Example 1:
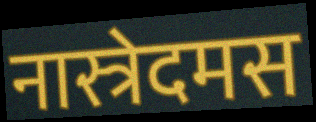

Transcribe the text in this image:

नास्त्रेदमस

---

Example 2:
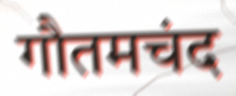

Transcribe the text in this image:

गौतमचंद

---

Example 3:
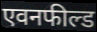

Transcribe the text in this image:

एवनफील्ड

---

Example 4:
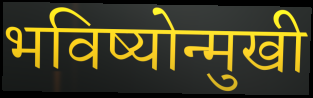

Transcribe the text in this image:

भविष्योन्मुखी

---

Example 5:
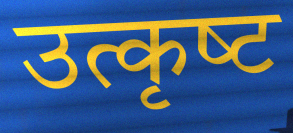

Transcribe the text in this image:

उत्कृष्‍ट